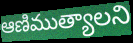
ఆణిముత్యాలని